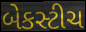
બેકસ્ટીચ